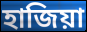
হাজিয়া